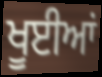
ਖੂਈਆਂ